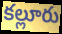
కల్లూరు